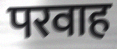
परवाह